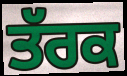
ਤੱਰਕ